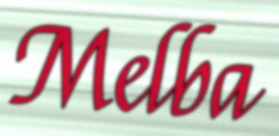
Melba